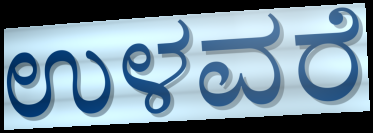
ಉಳವರೆ